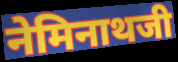
नेमिनाथजी